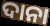
ଦାନା